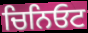
ਚਿਨਿਓਟ